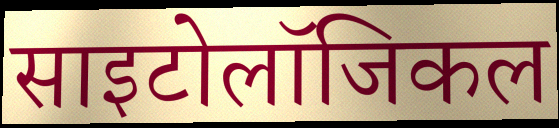
साइटोलॉजिकल